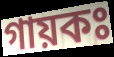
গায়কঃ